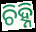
ଚିହ୍ନି